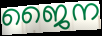
ജൈന